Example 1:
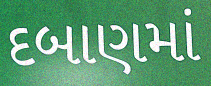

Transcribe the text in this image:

દબાણમાં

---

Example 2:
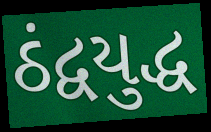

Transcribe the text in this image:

ઠંદ્વયુદ્ધ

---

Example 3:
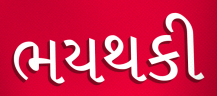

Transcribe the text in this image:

ભયથકી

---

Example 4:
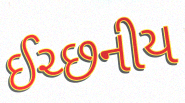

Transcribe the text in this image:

ઈચ્છનીય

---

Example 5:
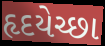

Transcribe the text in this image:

હૃદયેચ્છા